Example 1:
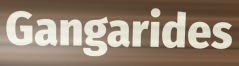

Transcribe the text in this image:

Gangarides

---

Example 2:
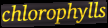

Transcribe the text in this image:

chlorophylls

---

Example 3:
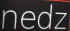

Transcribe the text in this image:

nedz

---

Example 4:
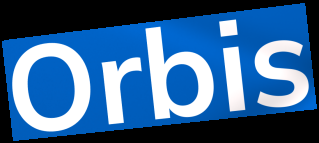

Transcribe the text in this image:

Orbis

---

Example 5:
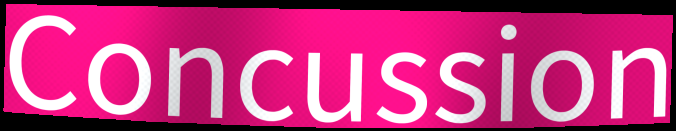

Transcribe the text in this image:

Concussion